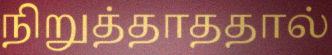
நிறுத்தாததால்